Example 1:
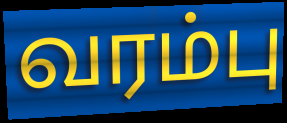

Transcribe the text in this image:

வரம்பு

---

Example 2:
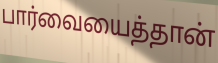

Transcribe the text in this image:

பார்வையைத்தான்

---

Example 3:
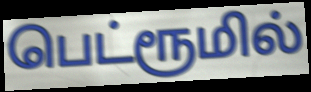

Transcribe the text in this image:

பெட்ரூமில்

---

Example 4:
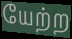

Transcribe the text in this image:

யேற்ற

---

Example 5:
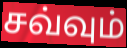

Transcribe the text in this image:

சவ்வும்